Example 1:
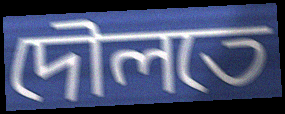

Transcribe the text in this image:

দৌলতে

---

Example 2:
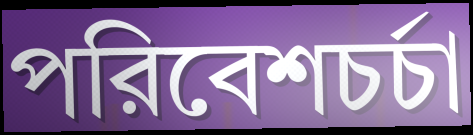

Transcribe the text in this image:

পরিবেশচর্চা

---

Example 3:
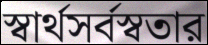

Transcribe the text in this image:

স্বার্থসর্বস্বতার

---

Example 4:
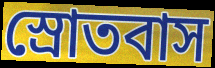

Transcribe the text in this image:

স্রোতবাস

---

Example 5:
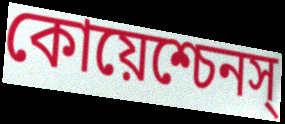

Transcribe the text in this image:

কোয়েশ্চেনস্